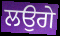
ਲਉਗੇ